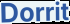
Dorrit